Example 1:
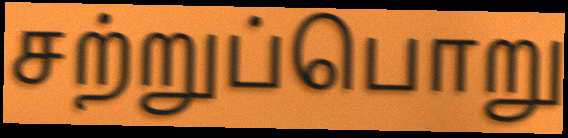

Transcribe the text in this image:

சற்றுப்பொறு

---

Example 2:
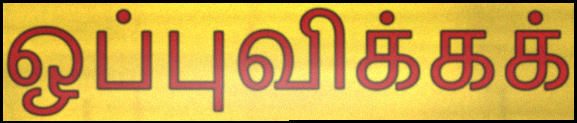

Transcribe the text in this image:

ஒப்புவிக்கக்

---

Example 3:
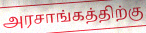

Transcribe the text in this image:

அரசாங்கத்திற்கு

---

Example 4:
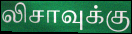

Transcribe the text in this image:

லிசாவுக்கு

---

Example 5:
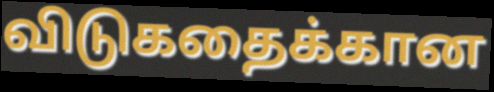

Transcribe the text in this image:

விடுகதைக்கான